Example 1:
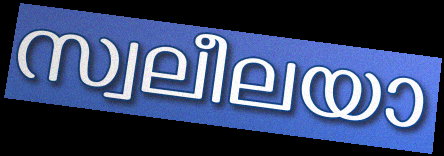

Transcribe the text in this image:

സ്വലീലയാ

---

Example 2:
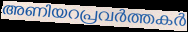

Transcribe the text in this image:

അണിയറപ്രവർത്തകർ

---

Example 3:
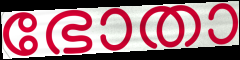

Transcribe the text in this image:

ഭോതാ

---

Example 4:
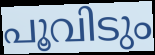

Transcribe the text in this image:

പൂവിടും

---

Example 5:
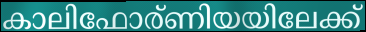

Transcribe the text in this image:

കാലിഫോര്ണിയയിലേക്ക്